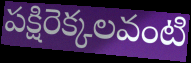
పక్షిరెక్కలవంటి